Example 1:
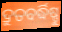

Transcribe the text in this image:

ଦ୍ରୁତବର୍ଦ୍ଧିଷ୍ଣୁ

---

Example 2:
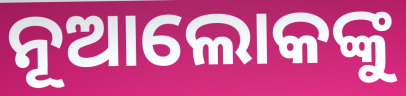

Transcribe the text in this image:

ନୂଆଲୋକଙ୍କୁ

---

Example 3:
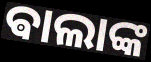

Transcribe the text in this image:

ଵାଲାଙ୍କ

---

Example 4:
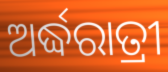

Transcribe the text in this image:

ଅର୍ଦ୍ଧରାତ୍ରୀ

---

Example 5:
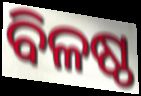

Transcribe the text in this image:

ବିଳଷ୍ଠ